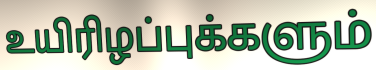
உயிரிழப்புக்களும்